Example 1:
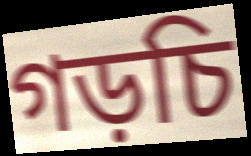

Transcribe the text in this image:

গড়চি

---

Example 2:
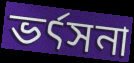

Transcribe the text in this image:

ভর্ৎসনা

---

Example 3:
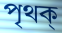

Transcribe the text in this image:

পৃথক্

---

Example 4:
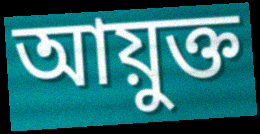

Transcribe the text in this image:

আয়ুক্ত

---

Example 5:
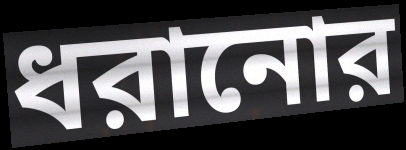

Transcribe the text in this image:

ধরানোর